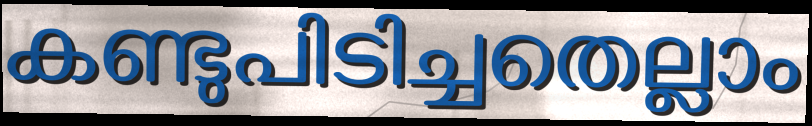
കണ്ടുപിടിച്ചതെല്ലാം